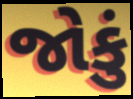
જોકું